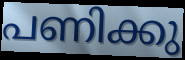
പണിക്കു